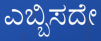
ಎಬ್ಬಿಸದೇ